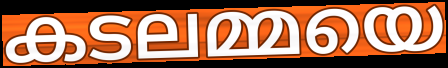
കടലമ്മയെ